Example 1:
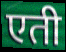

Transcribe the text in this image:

एती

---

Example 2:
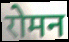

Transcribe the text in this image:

रोमन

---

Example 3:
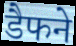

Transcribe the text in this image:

डैफने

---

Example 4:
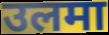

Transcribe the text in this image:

उलमा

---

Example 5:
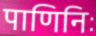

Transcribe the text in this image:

पाणिनिः